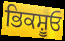
ਭਿਕਸ਼ੂਓ